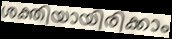
ശക്തിയായിരിക്കാം